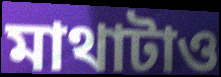
মাথাটাও